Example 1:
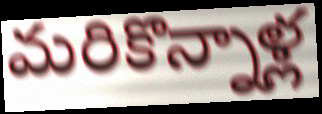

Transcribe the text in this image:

మరికొన్నాళ్ల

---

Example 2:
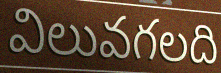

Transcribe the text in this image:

విలువగలది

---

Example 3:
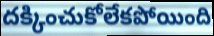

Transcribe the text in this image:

దక్కించుకోలేకపోయింది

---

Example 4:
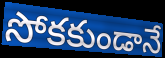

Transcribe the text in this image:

సోకకుండానే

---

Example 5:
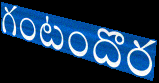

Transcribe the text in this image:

గంటందొర